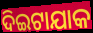
ଦିଇଟାଯାକ